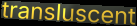
transluscent